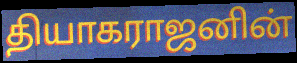
தியாகராஜனின்